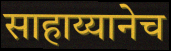
साहाय्यानेच